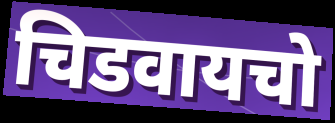
चिडवायचो